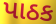
પાઠક